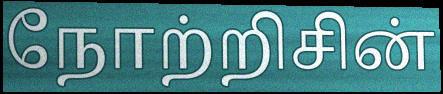
நோற்றிசின்